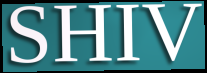
SHIV